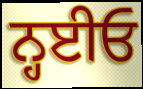
ਨ੍ਹਈਓ